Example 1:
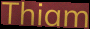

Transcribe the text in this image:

Thiam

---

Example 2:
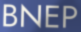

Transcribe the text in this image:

BNEP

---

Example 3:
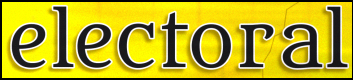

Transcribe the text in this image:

electoral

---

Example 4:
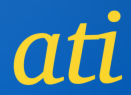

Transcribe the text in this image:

ati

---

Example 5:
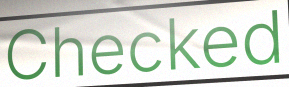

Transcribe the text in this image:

Checked